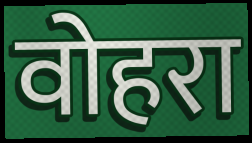
वोहरा